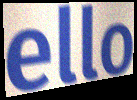
ello